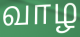
வாழ